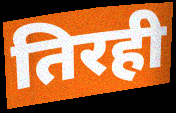
तिरही